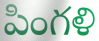
పింగళి